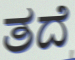
ತದೆ